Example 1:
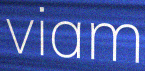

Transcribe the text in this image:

viam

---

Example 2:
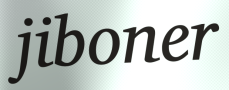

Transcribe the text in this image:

jiboner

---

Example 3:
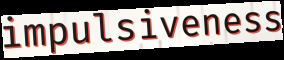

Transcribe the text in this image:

impulsiveness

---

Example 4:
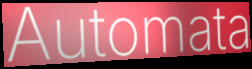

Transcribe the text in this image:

Automata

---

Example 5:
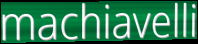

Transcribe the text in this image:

machiavelli